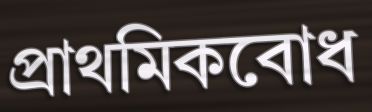
প্রাথমিকবোধ